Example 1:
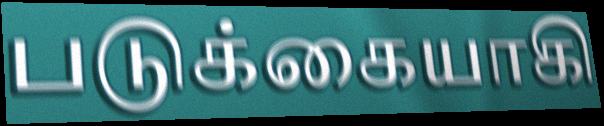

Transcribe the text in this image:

படுக்கையாகி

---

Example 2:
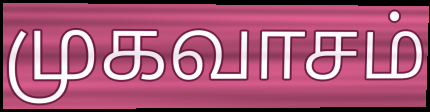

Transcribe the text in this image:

முகவாசம்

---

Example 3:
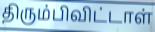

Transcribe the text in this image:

திரும்பிவிட்டாள்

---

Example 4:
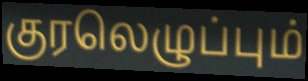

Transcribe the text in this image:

குரலெழுப்பும்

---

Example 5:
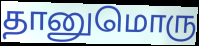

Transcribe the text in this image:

தானுமொரு